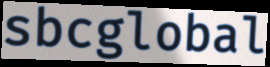
sbcglobal